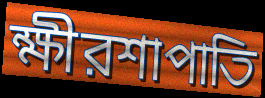
ক্ষীরশাপাতি